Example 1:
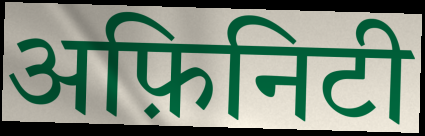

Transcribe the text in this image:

अफ़िनिटी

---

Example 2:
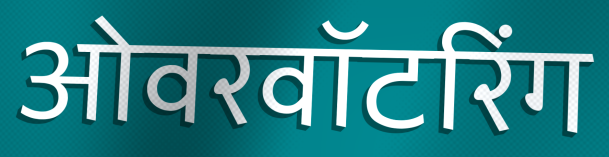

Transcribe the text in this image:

ओवरवॉटरिंग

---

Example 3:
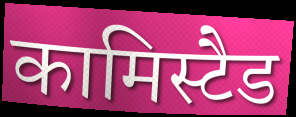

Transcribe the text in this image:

कामिस्टैड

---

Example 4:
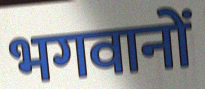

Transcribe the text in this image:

भगवानों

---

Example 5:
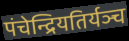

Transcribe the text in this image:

पंचेन्द्रियतिर्यञ्च